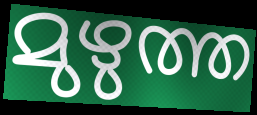
മുഴുത്ത